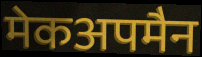
मेकअपमैन